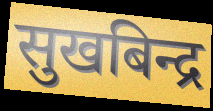
सुखबिन्द्र